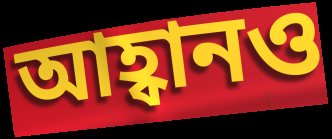
আহ্বানও